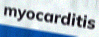
myocarditis